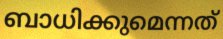
ബാധിക്കുമെന്നത്